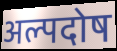
अल्पदोष